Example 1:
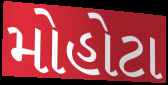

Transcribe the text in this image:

મોહોટા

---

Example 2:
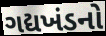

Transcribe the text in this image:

ગદ્યખંડનો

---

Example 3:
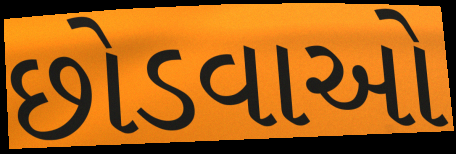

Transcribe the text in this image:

છોડવાઓ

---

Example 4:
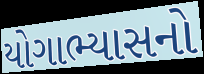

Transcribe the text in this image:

યોગાભ્યાસનો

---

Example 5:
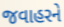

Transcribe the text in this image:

જવાહરને